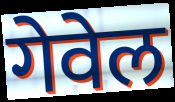
गेवेल